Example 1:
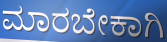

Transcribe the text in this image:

ಮಾರಬೇಕಾಗಿ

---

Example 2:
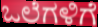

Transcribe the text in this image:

ಒಲೆಗಳಿಗೆ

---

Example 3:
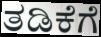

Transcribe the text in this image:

ತಡಿಕೆಗೆ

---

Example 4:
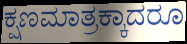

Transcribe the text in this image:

ಕ್ಷಣಮಾತ್ರಕ್ಕಾದರೂ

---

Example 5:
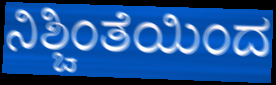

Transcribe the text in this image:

ನಿಶ್ಚಿಂತೆಯಿಂದ